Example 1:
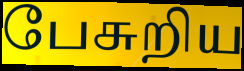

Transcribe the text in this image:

பேசுறிய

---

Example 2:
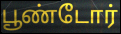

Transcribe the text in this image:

பூண்டோர்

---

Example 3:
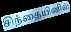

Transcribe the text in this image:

சிந்தையினில்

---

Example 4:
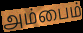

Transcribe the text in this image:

அம்பைம்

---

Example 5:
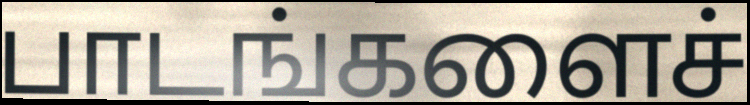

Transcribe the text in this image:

பாடங்களைச்